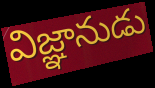
విజ్ఞానుడు